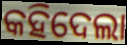
କହିଦେଲା